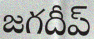
జగదీప్